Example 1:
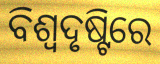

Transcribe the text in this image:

ବିଶ୍ଵଦୃଷ୍ଟିରେ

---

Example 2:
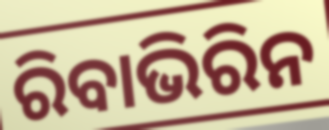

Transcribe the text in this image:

ରିବାଭିରିନ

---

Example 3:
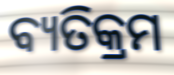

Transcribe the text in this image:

ବ୍ୟତିକ୍ରମ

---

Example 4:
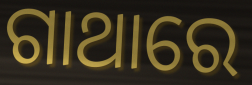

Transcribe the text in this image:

ଗାଥାରେ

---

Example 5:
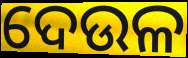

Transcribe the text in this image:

ଦେଉଳ